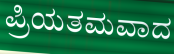
ಪ್ರಿಯತಮವಾದ